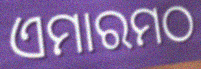
ଏମାରମଠ